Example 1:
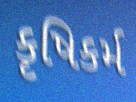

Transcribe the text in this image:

કૃષિકર્મ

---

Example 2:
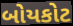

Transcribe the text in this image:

બોયકોટ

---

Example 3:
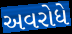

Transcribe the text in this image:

અવરોધે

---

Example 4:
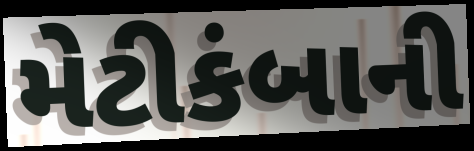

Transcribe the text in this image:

મેટીકંબાની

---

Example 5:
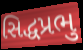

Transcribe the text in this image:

સિદ્ધપ્રભુ